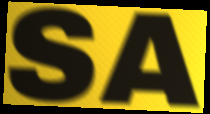
SA